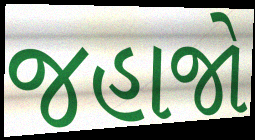
જહાજો